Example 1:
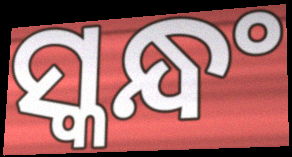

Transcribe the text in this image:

ସ୍କନ୍ଧଂ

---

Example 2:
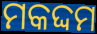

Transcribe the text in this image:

ମକଦ୍ଦମ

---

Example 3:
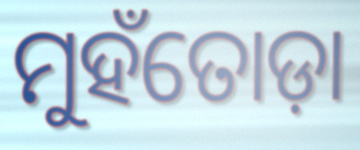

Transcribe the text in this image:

ମୁହଁତୋଡ଼ା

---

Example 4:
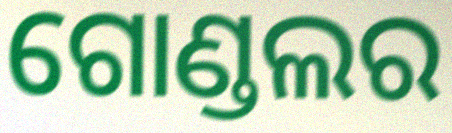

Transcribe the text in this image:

ଗୋଣ୍ଡଲର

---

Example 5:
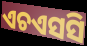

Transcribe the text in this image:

ଏଚଏସସି